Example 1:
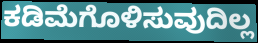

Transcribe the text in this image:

ಕಡಿಮೆಗೊಳಿಸುವುದಿಲ್ಲ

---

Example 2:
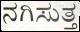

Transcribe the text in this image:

ನಗಿಸುತ್ತ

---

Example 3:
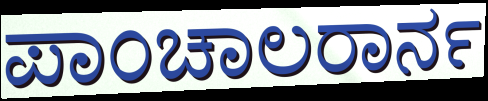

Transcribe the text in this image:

ಪಾಂಚಾಲರಾರ್ನ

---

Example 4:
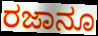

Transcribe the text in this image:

ರಜಾನೂ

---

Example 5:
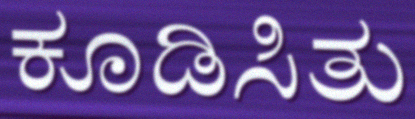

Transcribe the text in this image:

ಕೂಡಿಸಿತು